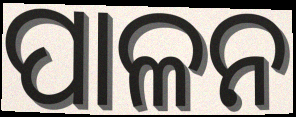
ପାଳନ